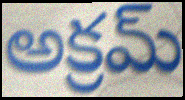
అక్రమ్